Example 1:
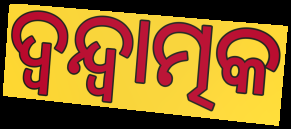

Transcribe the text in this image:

ଦ୍ଵନ୍ଦ୍ଵାତ୍ମକ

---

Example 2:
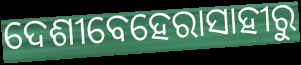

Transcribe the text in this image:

ଦେଶୀବେହେରାସାହୀରୁ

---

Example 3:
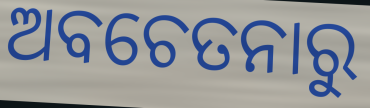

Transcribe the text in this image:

ଅବଚେତନାରୁ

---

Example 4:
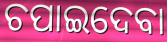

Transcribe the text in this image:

ଚପାଇଦେବା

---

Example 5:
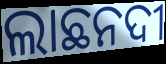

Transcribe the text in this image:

ଲାଛନଦୀ